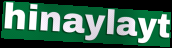
hinaylayt